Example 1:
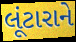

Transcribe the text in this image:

લૂંટારાને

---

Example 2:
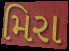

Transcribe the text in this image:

મિરા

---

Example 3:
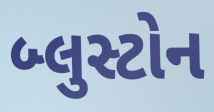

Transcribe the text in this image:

બ્લુસ્ટોન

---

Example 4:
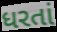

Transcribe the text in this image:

ધરતાં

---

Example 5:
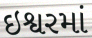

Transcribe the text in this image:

ઇશ્વરમાં